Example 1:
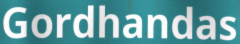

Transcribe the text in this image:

Gordhandas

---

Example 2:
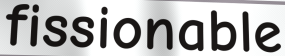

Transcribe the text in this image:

fissionable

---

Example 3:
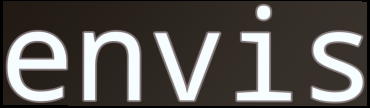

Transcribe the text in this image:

envis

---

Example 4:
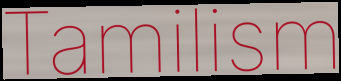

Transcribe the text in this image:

Tamilism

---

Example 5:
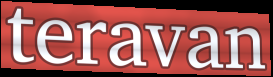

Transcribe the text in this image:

teravan